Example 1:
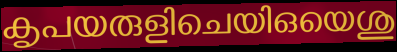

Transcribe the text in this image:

കൃപയരുളിചെയിഒയെശു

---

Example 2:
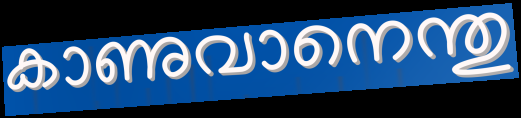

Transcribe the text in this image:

കാണുവാനെന്തു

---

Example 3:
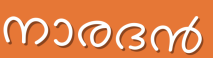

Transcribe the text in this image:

നാരദൻ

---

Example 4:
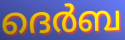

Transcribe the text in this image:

ദെർബ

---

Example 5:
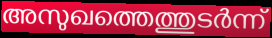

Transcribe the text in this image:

അസുഖത്തെത്തുടർന്ന്